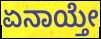
ಏನಾಯ್ತೇ